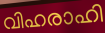
വിഹരാഹി